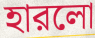
হারলো